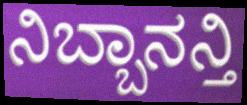
ನಿಬ್ಬಾನನ್ತಿ